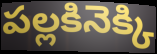
పల్లకినెక్కి